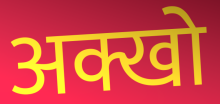
अक्खो